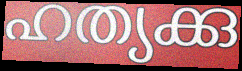
ഹത്യക്കു